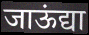
जाऊंद्या